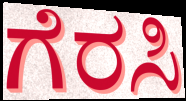
ಗೆರಸಿ